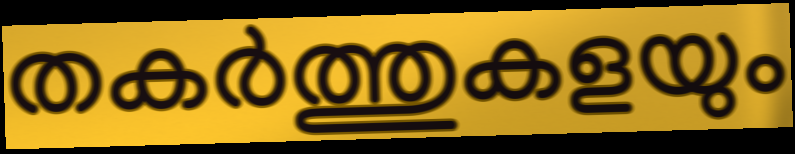
തകർത്തുകളയും